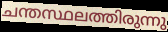
ചന്തസ്ഥലത്തിരുന്നു